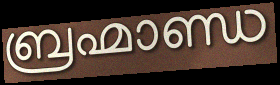
ബ്രഹ്മാണ്ഡ